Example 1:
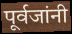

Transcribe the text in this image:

पूर्वजांनी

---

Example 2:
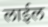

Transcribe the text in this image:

लाईल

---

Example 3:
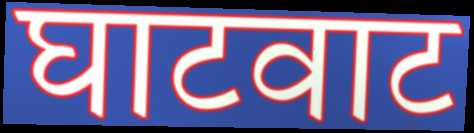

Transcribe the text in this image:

घाटवाट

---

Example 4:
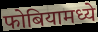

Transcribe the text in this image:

फोबियामध्ये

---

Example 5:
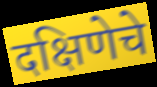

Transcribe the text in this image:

दक्षिणेचे